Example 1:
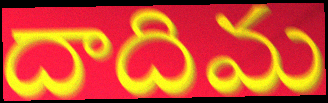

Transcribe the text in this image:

దాదిమ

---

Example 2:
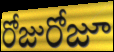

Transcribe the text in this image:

రోజురోజూ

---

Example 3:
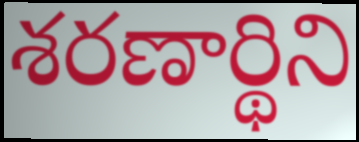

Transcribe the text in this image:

శరణార్థిని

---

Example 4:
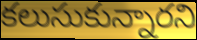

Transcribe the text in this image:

కలుసుకున్నారని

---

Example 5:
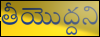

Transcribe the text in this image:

తీయొద్దని